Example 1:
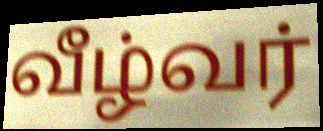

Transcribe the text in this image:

வீழ்வர்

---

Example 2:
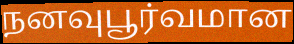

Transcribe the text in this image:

நனவுபூர்வமான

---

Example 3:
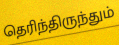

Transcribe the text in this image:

தெரிந்திருந்தும்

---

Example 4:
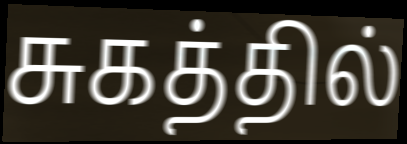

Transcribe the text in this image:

சுகத்தில்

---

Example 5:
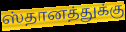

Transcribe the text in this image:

ஸ்தானத்துக்கு